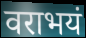
वराभयं